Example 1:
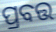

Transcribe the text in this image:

ପ୍ରବତ୍ତ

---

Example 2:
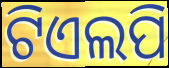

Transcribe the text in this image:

ଟିଏଲପି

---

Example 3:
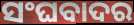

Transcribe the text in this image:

ସଂଘବାଦର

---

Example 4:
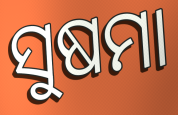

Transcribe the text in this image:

ସୁଷମା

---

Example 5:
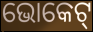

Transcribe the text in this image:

ଭୋକେଟ୍